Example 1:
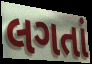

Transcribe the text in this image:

લગતાં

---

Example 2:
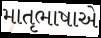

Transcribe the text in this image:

માતૃભાષાએ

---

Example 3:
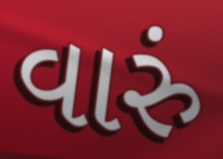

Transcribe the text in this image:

વારું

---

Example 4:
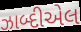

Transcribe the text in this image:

ઝાબ્દીએલ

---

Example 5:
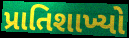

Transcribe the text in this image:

પ્રાતિશાખ્યો